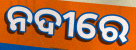
ନଦୀରେ